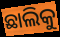
ଛାଲିକୁ